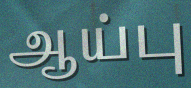
ஆய்பு